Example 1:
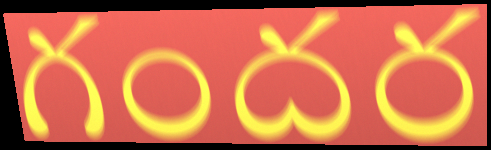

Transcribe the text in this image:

గందర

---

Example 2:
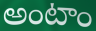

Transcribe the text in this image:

అంటాం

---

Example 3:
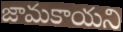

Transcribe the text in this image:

జామకాయని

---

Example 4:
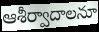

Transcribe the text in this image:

ఆశీర్వాదాలనూ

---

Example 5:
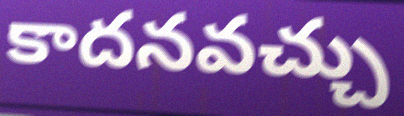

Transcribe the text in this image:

కాదనవచ్చు